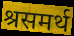
श्रसमर्थ